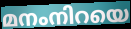
മനംനിറയെ